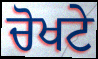
ਚੋਖਟੇ